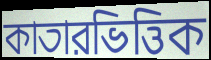
কাতারভিত্তিক